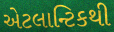
એટલાન્ટિકથી